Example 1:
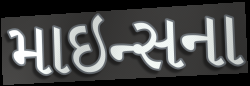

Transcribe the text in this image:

માઇન્સના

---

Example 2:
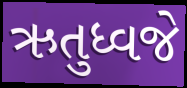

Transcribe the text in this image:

ઋતુધ્વજે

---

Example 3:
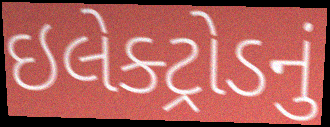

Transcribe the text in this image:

ઇલેક્ટ્રોડનું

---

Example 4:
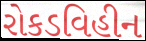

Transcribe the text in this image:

રોકડવિહીન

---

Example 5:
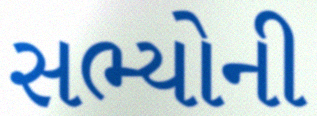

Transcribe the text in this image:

સભ્યોની